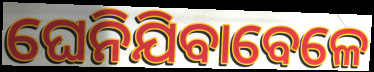
ଘେନିଯିବାବେଳେ